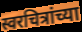
स्वरचित्रांच्या